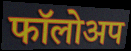
फॉलोअप